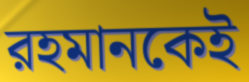
রহমানকেই